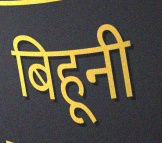
बिहूनी